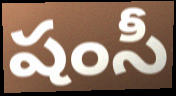
షంసీ